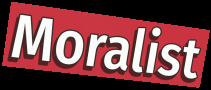
Moralist